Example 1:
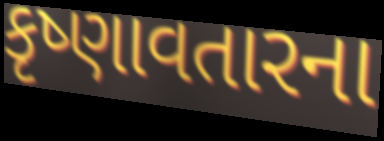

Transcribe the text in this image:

કૃષ્ણાવતારના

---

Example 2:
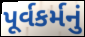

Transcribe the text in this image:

પૂર્વકર્મનું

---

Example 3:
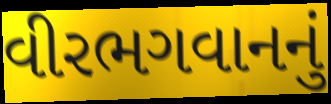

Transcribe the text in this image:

વીરભગવાનનું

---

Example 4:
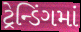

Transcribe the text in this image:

ટ્રેન્ડિંગમાં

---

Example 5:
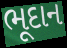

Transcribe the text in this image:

ભૂદાન